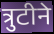
त्रुटीने